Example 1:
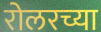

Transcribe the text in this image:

रोलरच्या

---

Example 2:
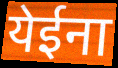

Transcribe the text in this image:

येईना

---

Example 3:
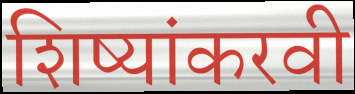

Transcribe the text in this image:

शिष्यांकरवी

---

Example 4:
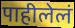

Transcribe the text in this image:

पाहीलेलं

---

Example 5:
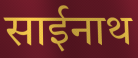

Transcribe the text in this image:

साईनाथ